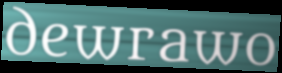
dewrawo